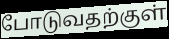
போடுவதற்குள்